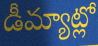
డీమ్యాట్లో